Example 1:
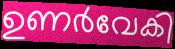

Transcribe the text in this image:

ഉണർവേകി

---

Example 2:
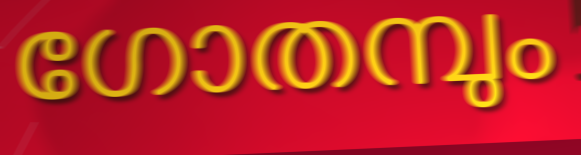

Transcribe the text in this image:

ഗോതമ്പും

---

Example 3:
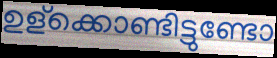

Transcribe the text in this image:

ഉള്ക്കൊണ്ടിട്ടുണ്ടോ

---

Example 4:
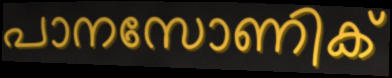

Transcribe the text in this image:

പാനസോണിക്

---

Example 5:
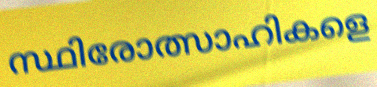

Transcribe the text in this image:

സ്ഥിരോത്സാഹികളെ